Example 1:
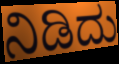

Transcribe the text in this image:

ನಿಡಿದು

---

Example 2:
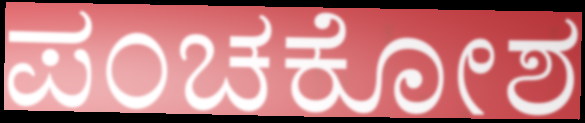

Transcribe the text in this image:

ಪಂಚಕೋಶ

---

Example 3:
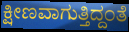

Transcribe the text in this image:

ಕ್ಷೀಣವಾಗುತ್ತಿದ್ದಂತೆ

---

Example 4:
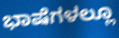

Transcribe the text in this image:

ಭಾಷೆಗಳಲ್ಲೂ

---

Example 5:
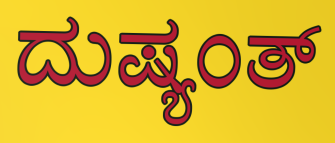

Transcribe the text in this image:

ದುಷ್ಯಂತ್